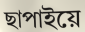
ছাপাইয়ে